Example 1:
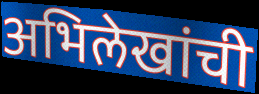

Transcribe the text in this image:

अभिलेखांची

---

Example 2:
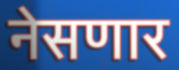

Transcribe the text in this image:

नेसणार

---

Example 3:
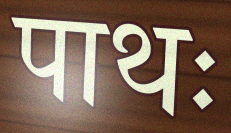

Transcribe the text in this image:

पाथः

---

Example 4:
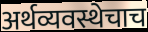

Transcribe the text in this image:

अर्थव्यवस्थेचाच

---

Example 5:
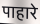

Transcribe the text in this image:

पाहारे